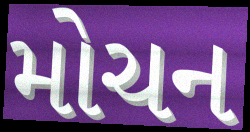
મોચન